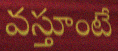
వస్తూంటే